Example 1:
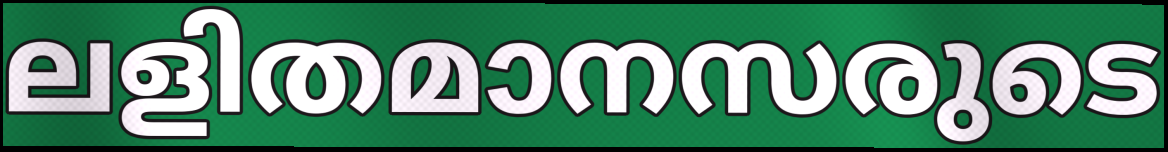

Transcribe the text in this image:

ലളിതമാനസരുടെ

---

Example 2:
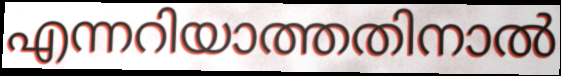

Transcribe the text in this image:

എന്നറിയാത്തതിനാൽ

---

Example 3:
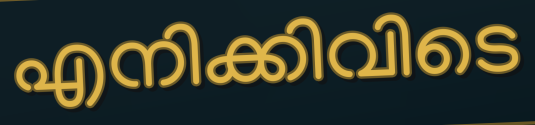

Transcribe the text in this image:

എനിക്കിവിടെ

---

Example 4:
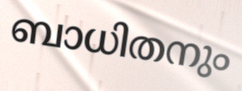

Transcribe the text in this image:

ബാധിതനും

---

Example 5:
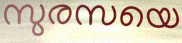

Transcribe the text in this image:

സുരസയെ